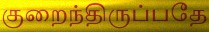
குறைந்திருப்பதே